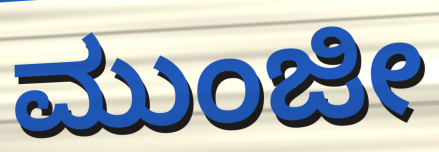
ಮುಂಜೀ